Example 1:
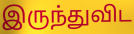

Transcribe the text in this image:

இருந்துவிட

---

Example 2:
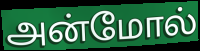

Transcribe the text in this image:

அன்மோல்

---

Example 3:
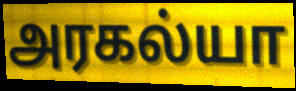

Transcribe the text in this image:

அரகல்யா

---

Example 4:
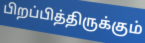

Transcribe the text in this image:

பிறப்பித்திருக்கும்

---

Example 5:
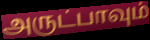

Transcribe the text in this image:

அருட்பாவும்